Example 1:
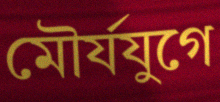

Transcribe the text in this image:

মৌর্যযুগে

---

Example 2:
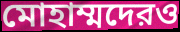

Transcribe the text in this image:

মোহাম্মদেরও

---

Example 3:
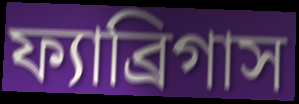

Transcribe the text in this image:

ফ্যাব্রিগাস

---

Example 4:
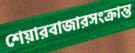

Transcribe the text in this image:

শেয়ারবাজারসংক্রান্ত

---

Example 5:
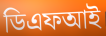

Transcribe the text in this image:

ডিএফআই